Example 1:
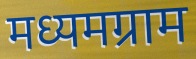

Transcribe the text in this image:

मध्यमग्राम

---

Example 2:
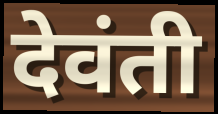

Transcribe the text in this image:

देवंती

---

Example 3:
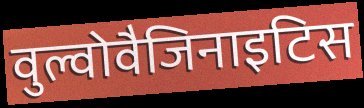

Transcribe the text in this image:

वुल्वोवैजिनाइटिस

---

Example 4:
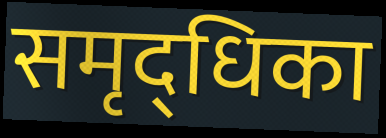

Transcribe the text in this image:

समृद्धिका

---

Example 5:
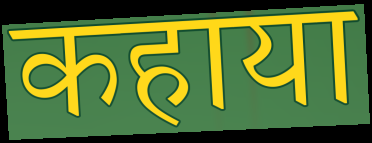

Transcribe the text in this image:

कहाया